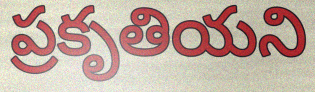
ప్రకృతియని